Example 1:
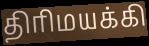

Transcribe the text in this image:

திரிமயக்கி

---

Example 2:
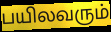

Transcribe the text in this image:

பயிலவரும்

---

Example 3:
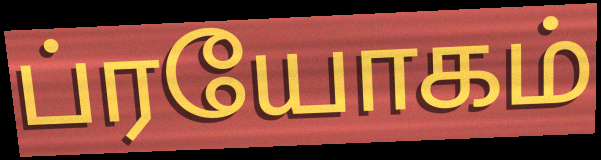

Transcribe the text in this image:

ப்ரயோகம்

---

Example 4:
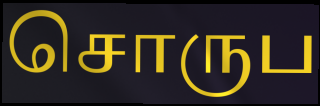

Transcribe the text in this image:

சொருப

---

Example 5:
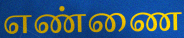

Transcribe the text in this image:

எண்ணை